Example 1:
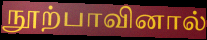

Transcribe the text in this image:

நூற்பாவினால்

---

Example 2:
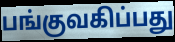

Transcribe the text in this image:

பங்குவகிப்பது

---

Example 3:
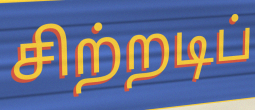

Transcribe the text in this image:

சிற்றடிப்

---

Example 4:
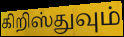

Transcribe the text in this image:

கிறிஸ்துவும்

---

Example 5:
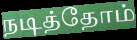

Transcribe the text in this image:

நடித்தோம்